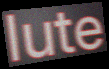
lute